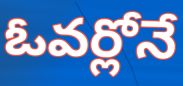
ఓవర్లోనే